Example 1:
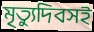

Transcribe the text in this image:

মৃত্যুদিবসই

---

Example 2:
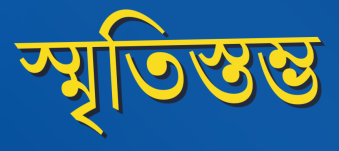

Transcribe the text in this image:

স্মৃতিস্তম্ভ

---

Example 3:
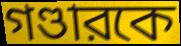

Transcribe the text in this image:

গণ্ডারকে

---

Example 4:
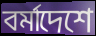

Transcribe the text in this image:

বর্মাদেশে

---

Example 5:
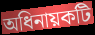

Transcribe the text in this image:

অধিনায়কটি